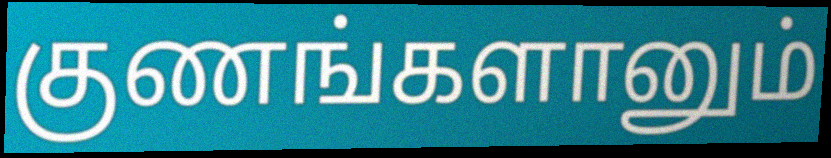
குணங்களானும்